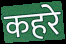
कहरे